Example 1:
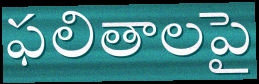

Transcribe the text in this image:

ఫలితాలపై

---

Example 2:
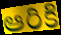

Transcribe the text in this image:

ఆరికి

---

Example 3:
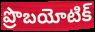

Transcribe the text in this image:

ప్రొబయోటిక్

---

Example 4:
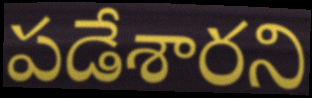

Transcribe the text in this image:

పడేశారని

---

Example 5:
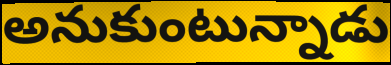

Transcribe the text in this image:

అనుకుంటున్నాడు